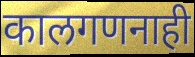
कालगणनाही